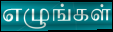
எழுங்கள்